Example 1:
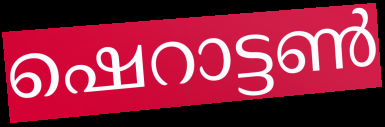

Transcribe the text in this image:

ഷെറാട്ടൺ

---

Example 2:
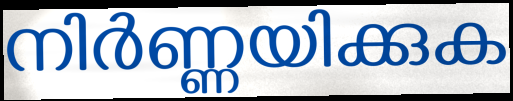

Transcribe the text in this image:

നിർണ്ണയിക്കുക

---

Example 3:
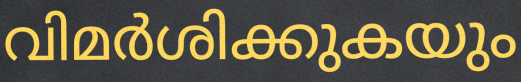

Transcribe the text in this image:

വിമർശിക്കുകയും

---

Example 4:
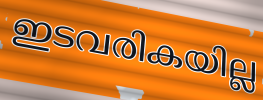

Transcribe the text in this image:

ഇടവരികയില്ല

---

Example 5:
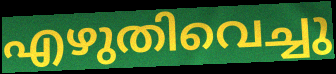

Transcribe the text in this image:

എഴുതിവെച്ചു